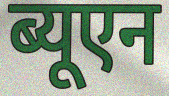
ब्यूएन